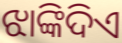
ଝାଙ୍କିଦିଏ